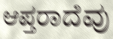
ಆಪ್ತರಾದೆವು